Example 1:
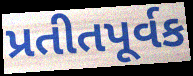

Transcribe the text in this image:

પ્રતીતપૂર્વક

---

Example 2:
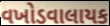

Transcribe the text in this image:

વખોડવાલાયક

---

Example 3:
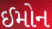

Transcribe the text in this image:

ઈમોન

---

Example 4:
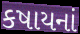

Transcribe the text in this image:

કષાયનાં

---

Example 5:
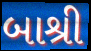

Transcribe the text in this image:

બાશ્રી